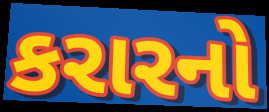
કરારનો